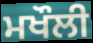
ਮਖੌਲੀ